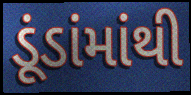
ડૂંડાંમાંથી